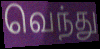
வெந்து